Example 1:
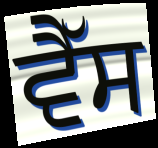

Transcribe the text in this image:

ਵੈੱਸ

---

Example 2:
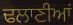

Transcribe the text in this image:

ਢਲਾਣੀਆਂ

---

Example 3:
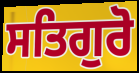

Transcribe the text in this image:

ਸਤਿਗੁਰੋ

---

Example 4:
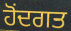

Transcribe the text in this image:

ਹੋਂਦਗਤ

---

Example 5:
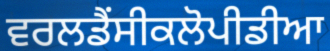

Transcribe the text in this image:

ਵਰਲਡੈਂਸੀਕਲੋਪੀਡੀਆ